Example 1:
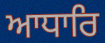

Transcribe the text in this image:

ਆਧਾਰਿ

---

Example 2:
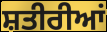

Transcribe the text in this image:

ਸ਼ਤੀਰੀਆਂ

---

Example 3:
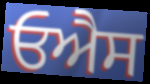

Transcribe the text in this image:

ਓਐਸ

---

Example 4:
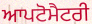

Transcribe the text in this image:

ਆਪਟੋਮੈਟਰੀ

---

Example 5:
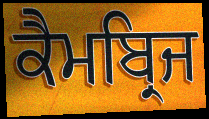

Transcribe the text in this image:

ਕੈਮਬ੍ਰਿਜ